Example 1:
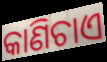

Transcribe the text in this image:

କାଣିଚାଏ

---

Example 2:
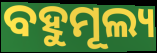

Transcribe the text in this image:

ବହୁମୂଲ୍ୟ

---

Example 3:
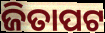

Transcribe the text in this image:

ଜିତାପଟ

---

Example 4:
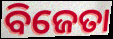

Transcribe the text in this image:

ବିଜେତା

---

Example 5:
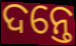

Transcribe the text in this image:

ଦନ୍ତେ